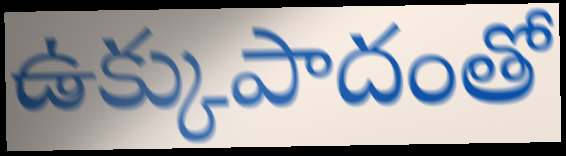
ఉక్కుపాదంతో